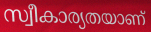
സ്വീകാര്യതയാണ്